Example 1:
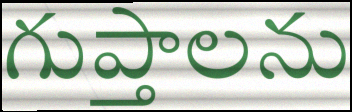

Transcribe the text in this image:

గుప్తాలను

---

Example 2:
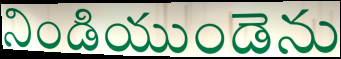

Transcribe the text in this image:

నిండియుండెను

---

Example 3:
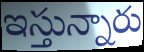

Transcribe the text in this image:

ఇస్తున్నారు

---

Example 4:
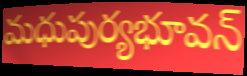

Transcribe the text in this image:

మధుపుర్యభూవన్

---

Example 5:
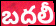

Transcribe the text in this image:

బదలీ